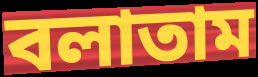
বলাতাম